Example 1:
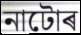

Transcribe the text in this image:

নাটোৰ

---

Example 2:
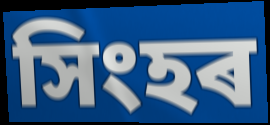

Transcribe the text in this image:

সিংহৰ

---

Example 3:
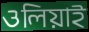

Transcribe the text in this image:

ওলিয়াই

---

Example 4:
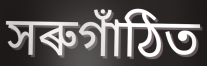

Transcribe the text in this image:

সৰুগাঁঠিত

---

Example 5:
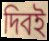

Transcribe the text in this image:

দিবই